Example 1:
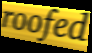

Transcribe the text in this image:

roofed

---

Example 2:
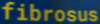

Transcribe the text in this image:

fibrosus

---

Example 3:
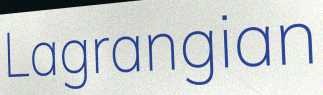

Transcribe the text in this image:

Lagrangian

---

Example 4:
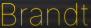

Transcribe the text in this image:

Brandt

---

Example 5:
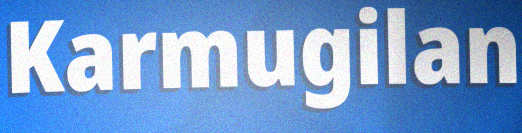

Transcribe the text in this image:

Karmugilan